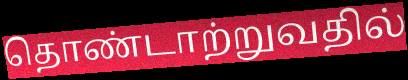
தொண்டாற்றுவதில்